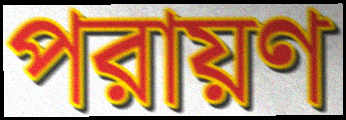
পরায়ণ